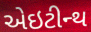
એઇટીન્થ